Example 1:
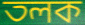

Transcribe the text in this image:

তলক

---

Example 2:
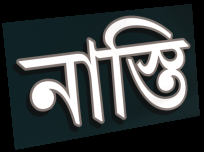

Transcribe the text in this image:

নাস্তি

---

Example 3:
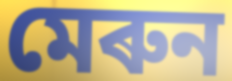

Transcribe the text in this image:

মেৰুন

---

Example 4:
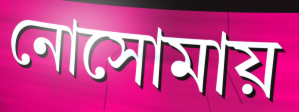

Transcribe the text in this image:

নোসোমায়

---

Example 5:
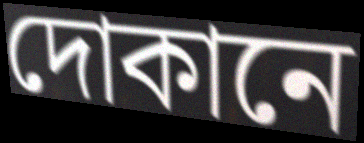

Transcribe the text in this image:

দোকানে